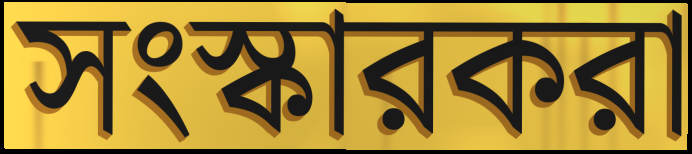
সংস্কারকরা